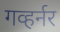
गव्हर्नर